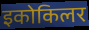
इकोकिलर